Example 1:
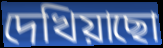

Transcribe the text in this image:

দেখিয়াছো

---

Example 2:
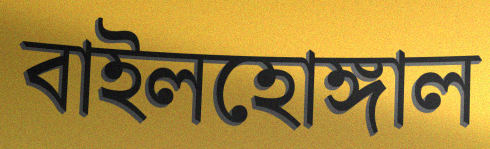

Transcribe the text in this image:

বাইলহোঙ্গাল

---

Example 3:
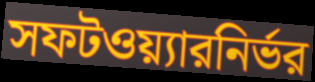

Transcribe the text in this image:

সফটওয়্যারনির্ভর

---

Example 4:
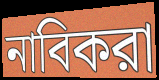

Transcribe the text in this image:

নাবিকরা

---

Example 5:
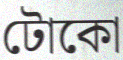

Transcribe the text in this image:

টোকো